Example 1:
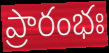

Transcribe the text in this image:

ప్రారంభః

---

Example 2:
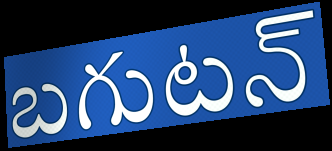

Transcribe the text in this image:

బగుటన్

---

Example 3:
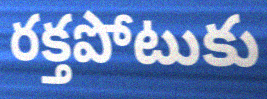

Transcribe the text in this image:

రక్తపోటుకు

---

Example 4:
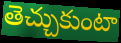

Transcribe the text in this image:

తెచ్చుకుంటా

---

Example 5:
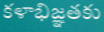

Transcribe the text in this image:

కళాభిజ్ఞతకు